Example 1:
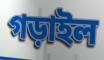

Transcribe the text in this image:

গড়াইল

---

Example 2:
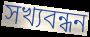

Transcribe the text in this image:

সখ্যবন্ধন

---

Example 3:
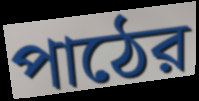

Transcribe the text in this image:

পাঠের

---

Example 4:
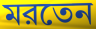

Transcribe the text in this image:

মরতেন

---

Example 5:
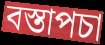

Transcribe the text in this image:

বস্তাপচা